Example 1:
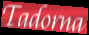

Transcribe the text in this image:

Tadorna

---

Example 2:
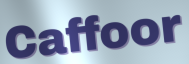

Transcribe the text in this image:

Caffoor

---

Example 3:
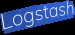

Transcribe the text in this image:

Logstash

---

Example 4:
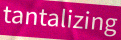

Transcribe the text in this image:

tantalizing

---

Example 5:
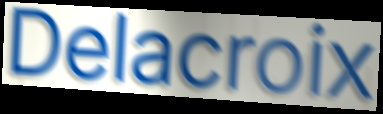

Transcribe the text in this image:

Delacroix